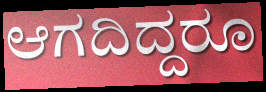
ಆಗದಿದ್ದರೂ